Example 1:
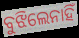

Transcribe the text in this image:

ବୁଝିଲେନାହିଁ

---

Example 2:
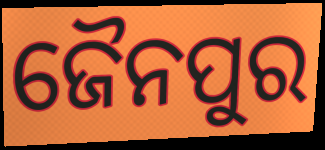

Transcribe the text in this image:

ଜୈନପୁର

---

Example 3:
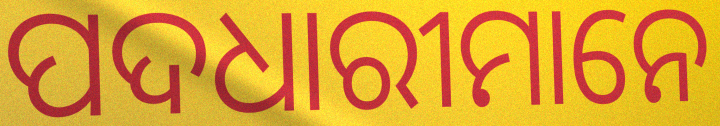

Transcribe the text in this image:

ପଦଧାରୀମାନେ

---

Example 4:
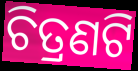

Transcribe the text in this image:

ଚିତ୍ରଣଟି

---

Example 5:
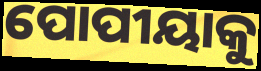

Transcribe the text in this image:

ପୋପୀୟାକୁ